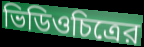
ভিডিওচিত্রের